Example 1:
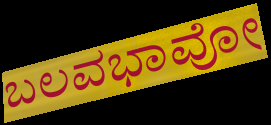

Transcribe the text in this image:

ಬಲವಭಾವೋ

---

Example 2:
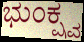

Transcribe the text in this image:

ಭುಂಕ್ಷ್ವ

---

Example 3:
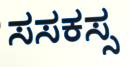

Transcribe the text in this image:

ಸಸಕಸ್ಸ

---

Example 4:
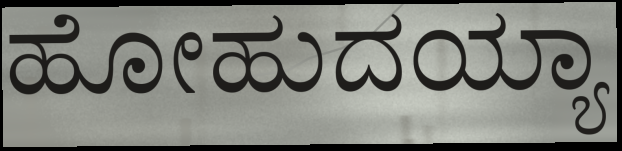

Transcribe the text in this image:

ಹೋಹುದಯ್ಯಾ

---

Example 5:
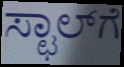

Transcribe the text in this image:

ಸ್ಟಾಲ್‌ಗೆ